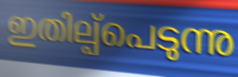
ഇതില്പ്പെടുന്നു